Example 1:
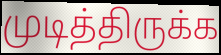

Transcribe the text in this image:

முடித்திருக்க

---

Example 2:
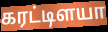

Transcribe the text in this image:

கரட்டிளயா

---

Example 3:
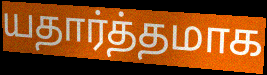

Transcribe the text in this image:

யதார்த்தமாக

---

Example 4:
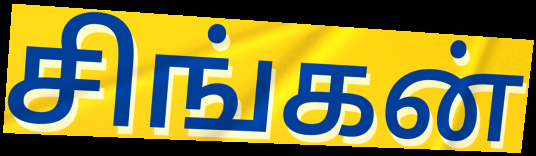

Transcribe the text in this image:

சிங்கன்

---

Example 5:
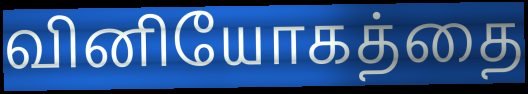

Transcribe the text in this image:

வினியோகத்தை